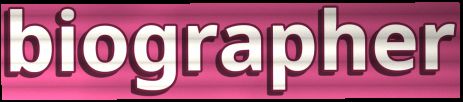
biographer